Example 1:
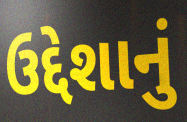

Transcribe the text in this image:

ઉદ્દેશાનું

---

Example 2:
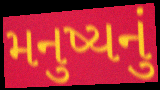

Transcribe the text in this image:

મનુષ્યનું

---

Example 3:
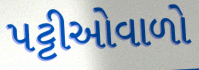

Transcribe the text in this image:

પટ્ટીઓવાળો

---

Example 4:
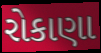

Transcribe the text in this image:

રોકાણા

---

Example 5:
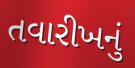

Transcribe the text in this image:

તવારીખનું